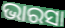
ଭାରସା